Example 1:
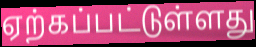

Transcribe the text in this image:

ஏற்கப்பட்டுள்ளது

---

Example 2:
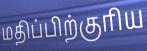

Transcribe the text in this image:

மதிப்பிற்குரிய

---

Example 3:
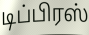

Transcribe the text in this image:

டிப்பிரஸ்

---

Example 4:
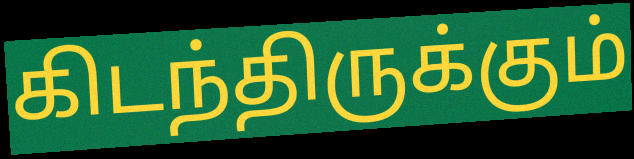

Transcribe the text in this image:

கிடந்திருக்கும்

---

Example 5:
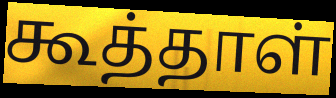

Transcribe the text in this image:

கூத்தாள்